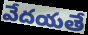
వేదయతే